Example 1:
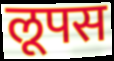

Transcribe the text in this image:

लूपस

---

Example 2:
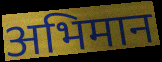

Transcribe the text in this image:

अभिमान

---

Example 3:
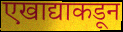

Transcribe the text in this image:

एखाद्याकडून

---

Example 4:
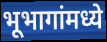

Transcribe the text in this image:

भूभागांमध्ये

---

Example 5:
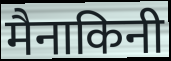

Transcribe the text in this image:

मैनाकिनी